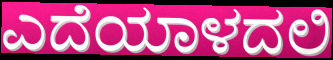
ಎದೆಯಾಳದಲಿ